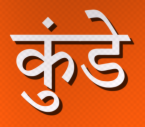
कुंडे